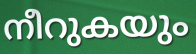
നീറുകയും